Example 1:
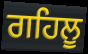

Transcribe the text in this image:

ਗਹਿਲੂ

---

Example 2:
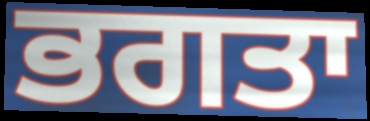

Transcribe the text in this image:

ਭਗਤਾ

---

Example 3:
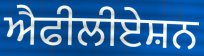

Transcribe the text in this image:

ਐਫੀਲੀਏਸ਼ਨ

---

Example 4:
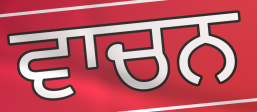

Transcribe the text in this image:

ਵਾਚਨ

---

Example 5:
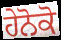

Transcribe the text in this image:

ਹੇਨੋਕੋ